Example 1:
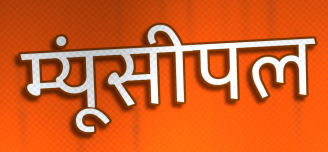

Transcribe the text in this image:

म्यूंसीपल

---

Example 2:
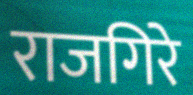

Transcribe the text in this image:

राजगिरे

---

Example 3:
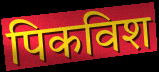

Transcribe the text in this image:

पिकविश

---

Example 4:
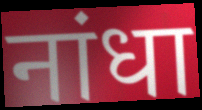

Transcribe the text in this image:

नांधा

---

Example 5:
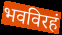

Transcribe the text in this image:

भवविरहं